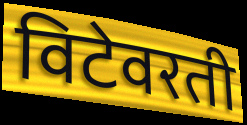
विटेवरती